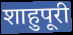
शाहुपूरी